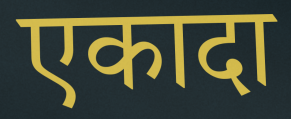
एकादा